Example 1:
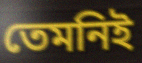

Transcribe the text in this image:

তেমনিই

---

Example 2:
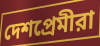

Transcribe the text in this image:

দেশপ্রেমীরা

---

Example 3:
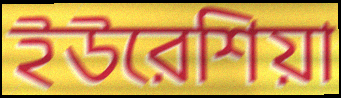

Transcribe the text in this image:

ইউরেশিয়া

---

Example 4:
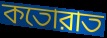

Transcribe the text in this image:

কতোরাত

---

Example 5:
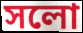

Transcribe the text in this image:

সলো